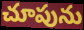
చూపును